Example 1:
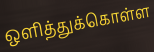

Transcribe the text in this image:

ஒளித்துக்கொள்ள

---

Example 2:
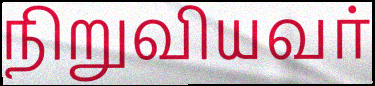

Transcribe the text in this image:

நிறுவியவர்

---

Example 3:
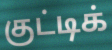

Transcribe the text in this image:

குட்டிக்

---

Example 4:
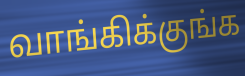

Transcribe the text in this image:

வாங்கிக்குங்க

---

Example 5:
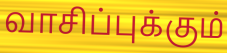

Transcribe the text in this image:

வாசிப்புக்கும்